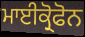
ਮਾਈਕ੍ਰੋਫੋਨ